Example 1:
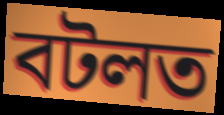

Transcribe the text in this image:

বটলত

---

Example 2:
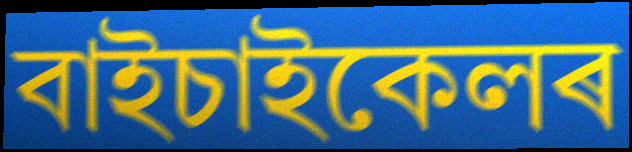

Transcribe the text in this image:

বাইচাইকেলৰ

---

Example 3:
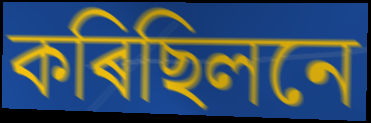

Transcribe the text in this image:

কৰিছিলনে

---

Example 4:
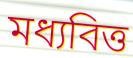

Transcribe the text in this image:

মধ্যবিত্ত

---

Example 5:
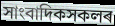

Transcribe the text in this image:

সাংবাদিকসকলৰ